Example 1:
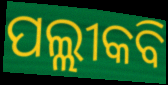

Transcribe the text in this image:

ପଲ୍ଲୀକବି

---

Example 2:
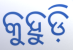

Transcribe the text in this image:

କୁହୁଡ଼ି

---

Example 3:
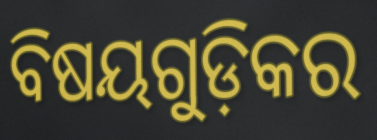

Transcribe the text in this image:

ବିଷୟଗୁଡ଼ିକର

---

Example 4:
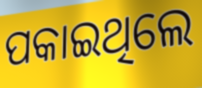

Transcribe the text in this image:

ପକାଇଥିଲେ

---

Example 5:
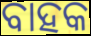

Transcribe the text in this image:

ବାହକ